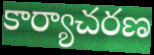
కార్యాచరణ